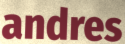
andres